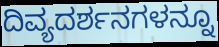
ದಿವ್ಯದರ್ಶನಗಳನ್ನೂ